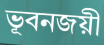
ভূবনজয়ী